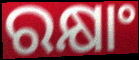
ରକ୍ଷାଂ